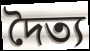
দৈত্য